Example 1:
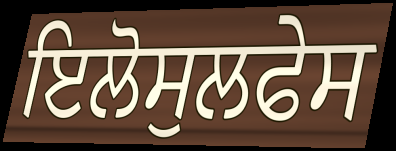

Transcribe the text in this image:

ਇਲੋਸੁਲਫੇਸ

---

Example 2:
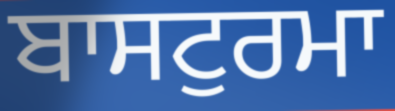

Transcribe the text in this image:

ਬਾਸਟੁਰਮਾ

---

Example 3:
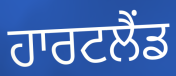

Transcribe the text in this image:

ਹਾਰਟਲੈਂਡ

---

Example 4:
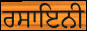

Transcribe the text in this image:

ਰਸਾਇਨੀ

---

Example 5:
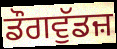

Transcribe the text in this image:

ਡੌਗਵੁੱਡਜ਼